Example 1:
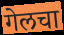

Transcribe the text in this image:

गेलचा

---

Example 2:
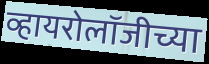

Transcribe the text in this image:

व्हायरोलॉजीच्या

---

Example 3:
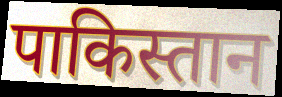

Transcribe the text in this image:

पाकिस्तान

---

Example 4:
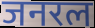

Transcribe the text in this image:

जनरल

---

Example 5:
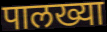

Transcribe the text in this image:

पालख्या